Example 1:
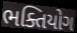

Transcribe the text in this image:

ભક્તિયોગ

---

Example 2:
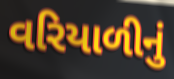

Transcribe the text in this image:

વરિયાળીનું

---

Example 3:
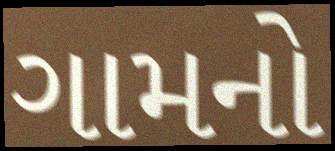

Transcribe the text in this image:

ગામનો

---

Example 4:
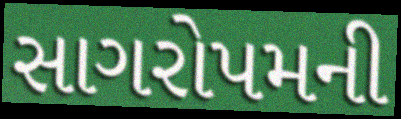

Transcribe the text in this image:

સાગરોપમની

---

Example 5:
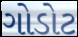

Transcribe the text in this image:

ગોડોટ